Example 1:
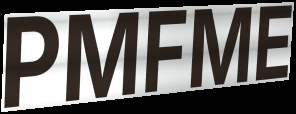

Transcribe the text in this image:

PMFME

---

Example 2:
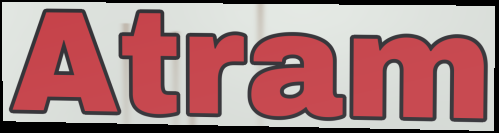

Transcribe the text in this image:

Atram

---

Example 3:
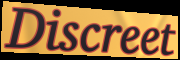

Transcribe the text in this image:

Discreet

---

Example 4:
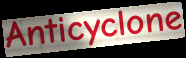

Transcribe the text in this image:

Anticyclone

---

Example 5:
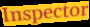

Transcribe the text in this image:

Inspector